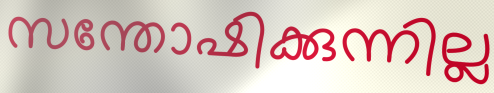
സന്തോഷിക്കുന്നില്ല